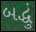
બદ્ધું